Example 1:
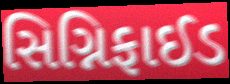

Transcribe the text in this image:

સિગ્નિફાઈડ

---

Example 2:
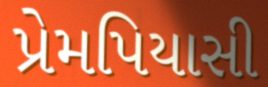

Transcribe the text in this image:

પ્રેમપિયાસી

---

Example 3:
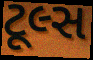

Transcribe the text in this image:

ટૂલ્સ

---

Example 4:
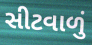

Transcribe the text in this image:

સીટવાળું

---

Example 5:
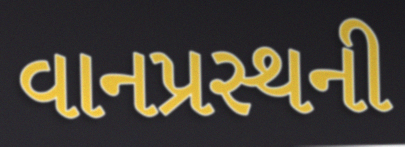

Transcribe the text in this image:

વાનપ્રસ્થની